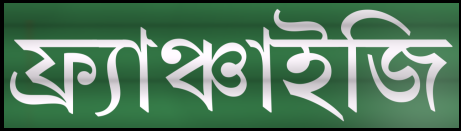
ফ্র্যাঞ্চাইজি